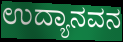
ಉದ್ಯಾನವನ